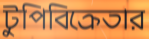
টুপিবিক্রেতার